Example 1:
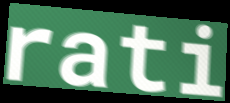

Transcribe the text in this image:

rati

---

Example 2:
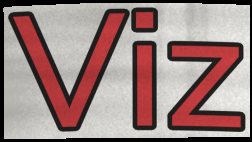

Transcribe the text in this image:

Viz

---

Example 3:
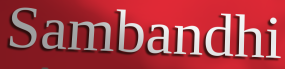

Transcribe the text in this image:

Sambandhi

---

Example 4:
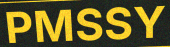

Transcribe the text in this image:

PMSSY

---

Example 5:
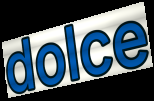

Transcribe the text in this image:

dolce